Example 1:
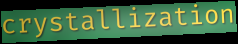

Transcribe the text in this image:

crystallization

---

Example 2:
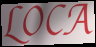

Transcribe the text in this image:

LOCA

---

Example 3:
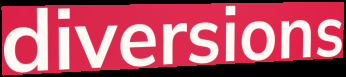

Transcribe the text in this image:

diversions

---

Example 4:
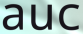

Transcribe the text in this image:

auc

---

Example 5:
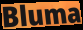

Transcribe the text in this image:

Bluma